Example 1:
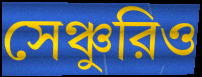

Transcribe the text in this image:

সেঞ্চুরিও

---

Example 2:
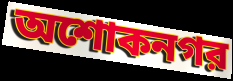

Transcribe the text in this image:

অশোকনগর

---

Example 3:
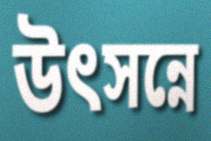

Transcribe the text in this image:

উৎসন্নে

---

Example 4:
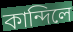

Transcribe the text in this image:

কান্দিলে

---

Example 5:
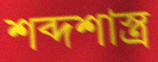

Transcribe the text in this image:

শব্দশাস্ত্র